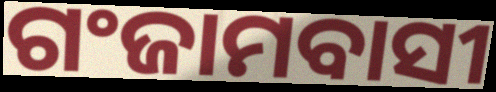
ଗଂଜାମବାସୀ